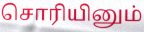
சொரியினும்